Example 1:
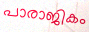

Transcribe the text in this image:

പാരാജികം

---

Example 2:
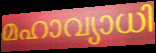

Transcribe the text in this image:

മഹാവ്യാധി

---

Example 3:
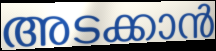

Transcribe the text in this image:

അടക്കാൻ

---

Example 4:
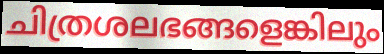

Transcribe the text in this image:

ചിത്രശലഭങ്ങളെങ്കിലും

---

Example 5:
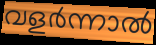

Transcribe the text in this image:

വളർന്നാൽ